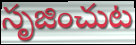
సృజించుట